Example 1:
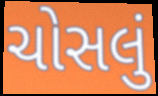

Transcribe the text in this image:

ચોસલું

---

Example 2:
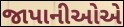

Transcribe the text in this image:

જાપાનીઓએ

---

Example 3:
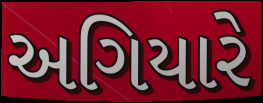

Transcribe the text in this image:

અગિયારે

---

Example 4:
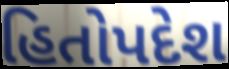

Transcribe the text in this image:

હિતોપદેશ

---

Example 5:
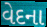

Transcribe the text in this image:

વેદના